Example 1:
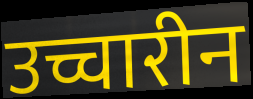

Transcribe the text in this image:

उच्चारीन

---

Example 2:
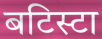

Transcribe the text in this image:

बटिस्टा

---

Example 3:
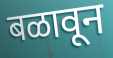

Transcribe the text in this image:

बळावून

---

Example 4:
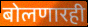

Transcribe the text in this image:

बोलणारही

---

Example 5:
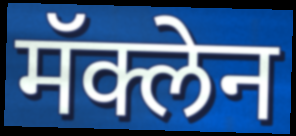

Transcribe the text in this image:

मॅक्लेन